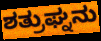
ಶತ್ರುಘ್ನನು